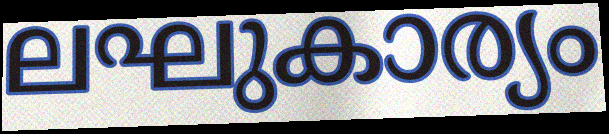
ലഘുകാര്യം